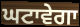
ਘਟਾਵੇਗਾ